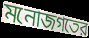
মনোজগতের